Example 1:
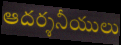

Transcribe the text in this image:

ఆదర్శనీయులు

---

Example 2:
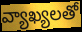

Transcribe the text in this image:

వ్యాఖ్యలతో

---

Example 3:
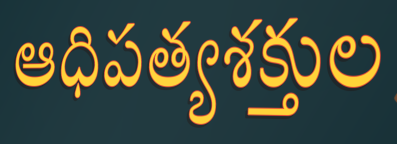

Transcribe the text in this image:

ఆధిపత్యశక్తుల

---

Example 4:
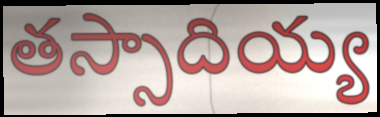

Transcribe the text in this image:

తస్సాదియ్య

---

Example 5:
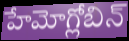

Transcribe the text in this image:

హేమోగ్లోబిన్